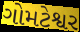
ગોમટેશ્વર